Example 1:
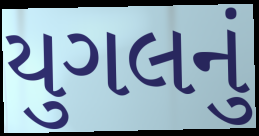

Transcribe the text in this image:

યુગલનું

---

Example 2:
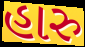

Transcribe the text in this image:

હારુ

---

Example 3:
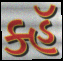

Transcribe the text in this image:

ક્હૅ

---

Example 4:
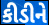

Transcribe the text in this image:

કીડીને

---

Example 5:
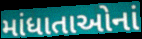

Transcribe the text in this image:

માંધાતાઓનાં